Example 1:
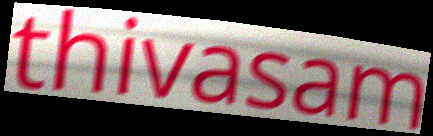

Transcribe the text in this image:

thivasam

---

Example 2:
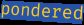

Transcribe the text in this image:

pondered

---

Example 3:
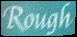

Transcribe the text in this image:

Rough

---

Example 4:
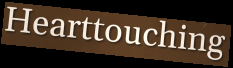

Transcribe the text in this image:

Hearttouching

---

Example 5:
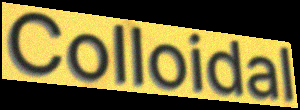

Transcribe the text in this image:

Colloidal